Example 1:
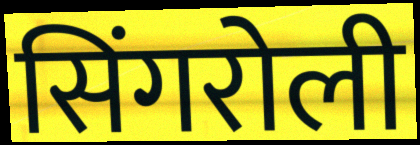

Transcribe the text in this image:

सिंगरोली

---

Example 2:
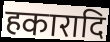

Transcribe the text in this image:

हकारादि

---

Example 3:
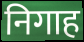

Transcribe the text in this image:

निगाह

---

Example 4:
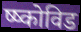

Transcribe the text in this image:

ष्ष्कोविड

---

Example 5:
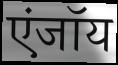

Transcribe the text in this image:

एंजॉय